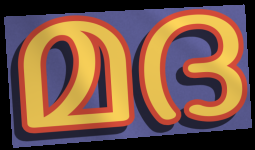
മദ